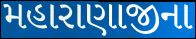
મહારાણાજીના